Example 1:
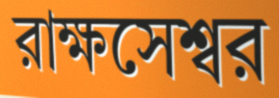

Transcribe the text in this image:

রাক্ষসেশ্বর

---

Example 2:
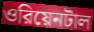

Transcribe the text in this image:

ওরিয়েনটাল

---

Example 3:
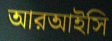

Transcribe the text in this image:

আরআইসি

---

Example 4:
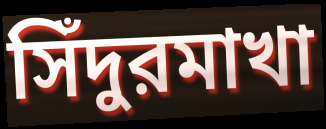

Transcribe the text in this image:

সিঁদুরমাখা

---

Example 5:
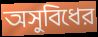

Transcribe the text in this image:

অসুবিধের